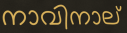
നാവിനാല്